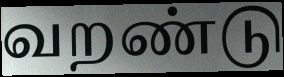
வறண்டு